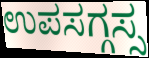
ಉಪಸಗ್ಗಸ್ಸ